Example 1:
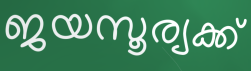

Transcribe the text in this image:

ജയസൂര്യക്ക്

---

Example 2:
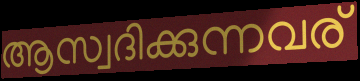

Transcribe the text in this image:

ആസ്വദിക്കുന്നവര്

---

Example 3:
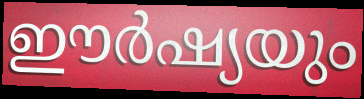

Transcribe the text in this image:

ഈർഷ്യയും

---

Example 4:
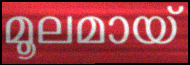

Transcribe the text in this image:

മൂലമായ്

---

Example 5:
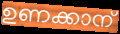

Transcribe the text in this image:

ഉണക്കാന്